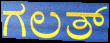
ಗಲತ್